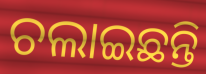
ଚଲାଇଛନ୍ତି